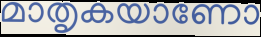
മാതൃകയാണോ